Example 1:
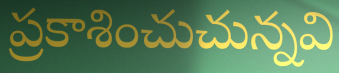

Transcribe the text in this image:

ప్రకాశించుచున్నవి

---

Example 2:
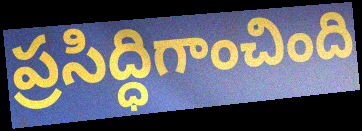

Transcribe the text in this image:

ప్రసిద్ధిగాంచింది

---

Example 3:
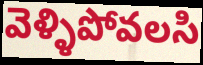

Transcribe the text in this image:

వెళ్ళిపోవలసి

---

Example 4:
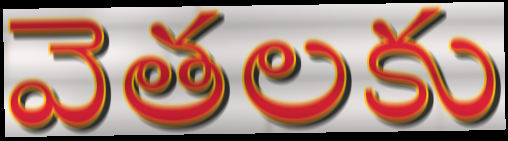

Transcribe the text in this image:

వెతలకు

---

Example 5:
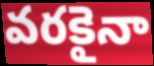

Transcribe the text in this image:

వరకైనా